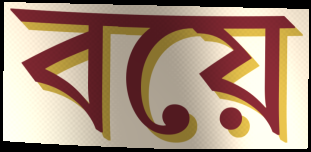
বয়ে